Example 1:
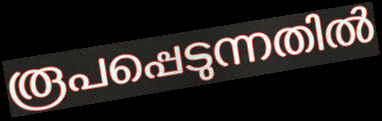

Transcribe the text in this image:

രൂപപ്പെടുന്നതിൽ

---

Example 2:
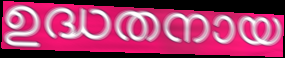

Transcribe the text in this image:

ഉദ്ധതനായ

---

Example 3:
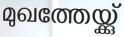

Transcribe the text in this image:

മുഖത്തേയ്ക്കു്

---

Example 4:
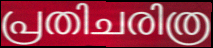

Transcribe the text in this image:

പ്രതിചരിത്ര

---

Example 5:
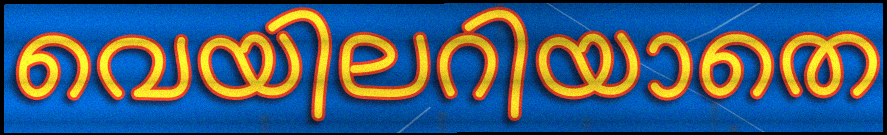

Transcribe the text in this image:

വെയിലറിയാതെ